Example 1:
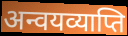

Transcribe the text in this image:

अन्वयव्याप्ति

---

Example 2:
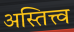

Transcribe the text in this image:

अस्तित्त्व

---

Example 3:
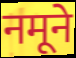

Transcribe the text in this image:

नमूने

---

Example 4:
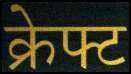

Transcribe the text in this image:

क्रेफ्ट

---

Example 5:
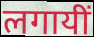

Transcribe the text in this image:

लगायीं